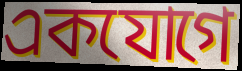
একযোগে